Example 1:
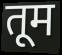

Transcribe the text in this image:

तूम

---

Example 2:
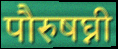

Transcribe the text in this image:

पौरुषघ्नी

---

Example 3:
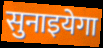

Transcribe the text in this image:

सुनाइयेगा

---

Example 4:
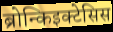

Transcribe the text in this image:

ब्रोन्किइक्टेसिस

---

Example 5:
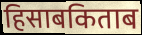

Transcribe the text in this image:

हिसाबकिताब